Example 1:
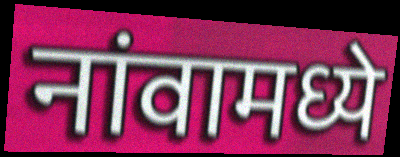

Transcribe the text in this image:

नांवामध्ये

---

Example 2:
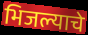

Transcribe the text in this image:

भिजल्याचे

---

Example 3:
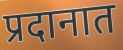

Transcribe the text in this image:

प्रदानात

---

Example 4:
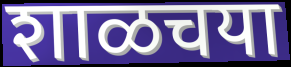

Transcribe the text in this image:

शाळचया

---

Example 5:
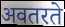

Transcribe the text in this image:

अवतरते